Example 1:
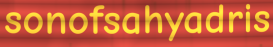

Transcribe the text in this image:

sonofsahyadris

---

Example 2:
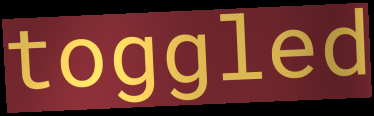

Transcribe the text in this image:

toggled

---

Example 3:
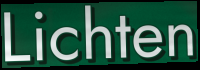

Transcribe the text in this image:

Lichten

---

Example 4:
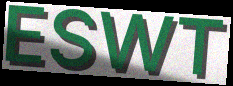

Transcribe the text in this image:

ESWT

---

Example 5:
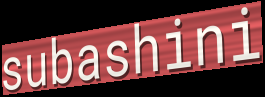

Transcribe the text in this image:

subashini